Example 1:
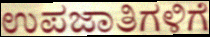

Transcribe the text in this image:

ಉಪಜಾತಿಗಳಿಗೆ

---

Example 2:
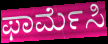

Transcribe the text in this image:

ಫಾರ್ಮೆಸಿ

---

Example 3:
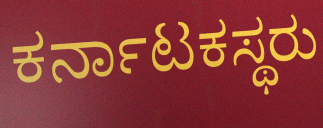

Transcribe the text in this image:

ಕರ್ನಾಟಕಸ್ಥರು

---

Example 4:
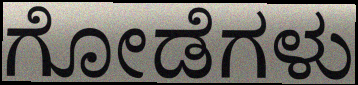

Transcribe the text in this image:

ಗೋಡೆಗಳು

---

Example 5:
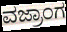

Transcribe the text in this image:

ವಜ್ರಾಂಗ